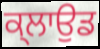
ਕ੍ਲਾਉਡ